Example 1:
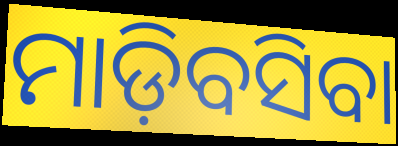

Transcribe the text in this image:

ମାଡ଼ିବସିବା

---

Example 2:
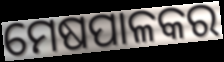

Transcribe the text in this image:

ମେଷପାଳକର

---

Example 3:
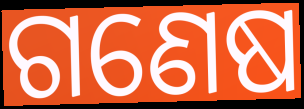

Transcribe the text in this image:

ଗଣେଷ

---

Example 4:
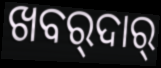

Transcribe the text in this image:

ଖବର୍‍ଦାର୍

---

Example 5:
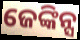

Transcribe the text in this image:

ଜେଙ୍କିନ୍ସ